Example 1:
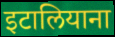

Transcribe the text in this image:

इटालियाना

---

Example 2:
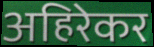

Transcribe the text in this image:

अहिरेकर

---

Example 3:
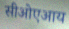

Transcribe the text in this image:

सीओएआय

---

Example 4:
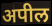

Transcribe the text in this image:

अपील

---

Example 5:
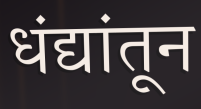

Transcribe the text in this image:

धंद्यांतून